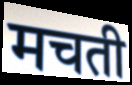
मचती